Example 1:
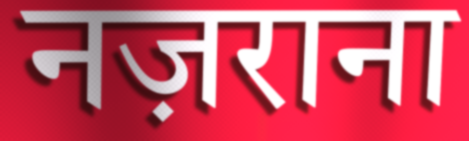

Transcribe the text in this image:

नज़राना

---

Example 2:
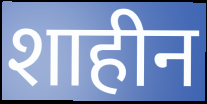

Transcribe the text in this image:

शाहीन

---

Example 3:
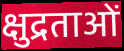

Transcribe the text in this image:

क्षुद्रताओं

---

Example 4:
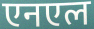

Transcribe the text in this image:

एनएल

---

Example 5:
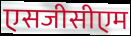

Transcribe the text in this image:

एसजीसीएम